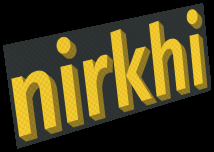
nirkhi